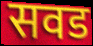
सवड